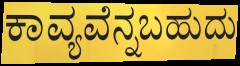
ಕಾವ್ಯವೆನ್ನಬಹುದು